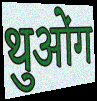
थुओंग